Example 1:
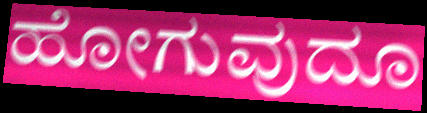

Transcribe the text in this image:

ಹೋಗುವುದೂ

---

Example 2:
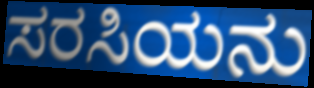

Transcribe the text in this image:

ಸರಸಿಯನು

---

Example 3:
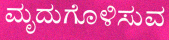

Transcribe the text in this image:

ಮೃದುಗೊಳಿಸುವ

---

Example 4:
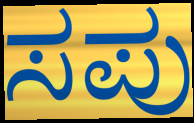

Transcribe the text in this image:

ಸಪು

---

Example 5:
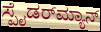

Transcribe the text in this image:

ಸ್ಪೈಡರ್‌ಮ್ಯಾನ್